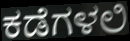
ಕಡೆಗಳಲಿ